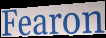
Fearon